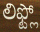
లిఫ్ట్లో